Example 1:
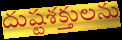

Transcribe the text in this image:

దుష్టశక్తులను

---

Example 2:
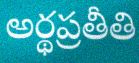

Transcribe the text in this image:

అర్థప్రతీతి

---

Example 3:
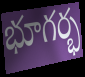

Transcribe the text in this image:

భూగర్భ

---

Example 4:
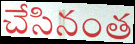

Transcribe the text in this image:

చేసినంత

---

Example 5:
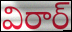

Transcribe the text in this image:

విరార్